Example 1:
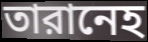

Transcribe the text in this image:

তারানেহ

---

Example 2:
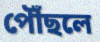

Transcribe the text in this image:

পৌঁছলে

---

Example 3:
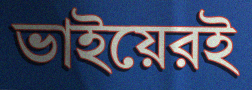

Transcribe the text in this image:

ভাইয়েরই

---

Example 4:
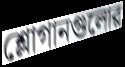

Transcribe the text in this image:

শ্লোগানগুলোর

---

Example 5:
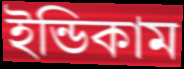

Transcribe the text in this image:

ইন্ডিকাম